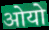
ओयो